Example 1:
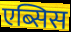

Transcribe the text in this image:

एब्सिस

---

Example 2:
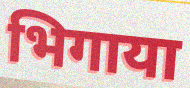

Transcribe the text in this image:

भिगाया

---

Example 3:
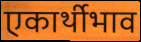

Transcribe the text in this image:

एकार्थीभाव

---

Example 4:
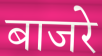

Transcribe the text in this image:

बाजरे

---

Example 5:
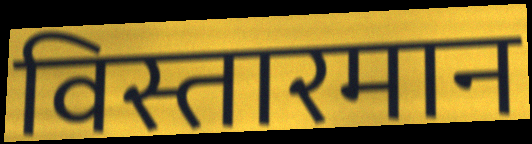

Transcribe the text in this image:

विस्तारमान